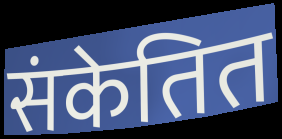
संकेतित